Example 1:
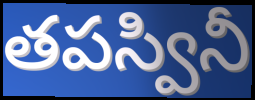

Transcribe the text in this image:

తపస్వినీ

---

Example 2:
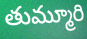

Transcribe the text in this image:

తుమ్మూరి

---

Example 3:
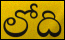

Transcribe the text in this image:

లోది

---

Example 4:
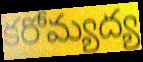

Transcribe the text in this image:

కరోమ్యద్య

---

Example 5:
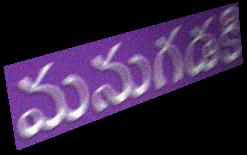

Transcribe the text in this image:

మనుగడకి